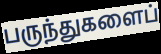
பருந்துகளைப்